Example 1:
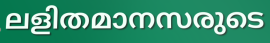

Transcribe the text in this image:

ലളിതമാനസരുടെ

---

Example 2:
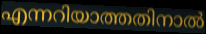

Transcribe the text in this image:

എന്നറിയാത്തതിനാൽ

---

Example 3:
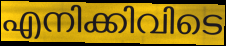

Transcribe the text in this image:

എനിക്കിവിടെ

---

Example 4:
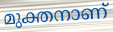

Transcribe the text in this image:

മുക്തനാണ്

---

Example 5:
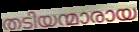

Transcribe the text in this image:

തടിയന്മാരായ